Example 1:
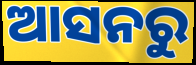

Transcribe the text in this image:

ଆସନରୁ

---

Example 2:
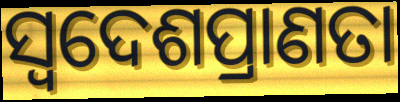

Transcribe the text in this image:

ସ୍ଵଦେଶପ୍ରାଣତା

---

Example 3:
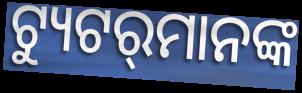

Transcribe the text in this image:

ଟ୍ୟୁଟର୍‍ମାନଙ୍କ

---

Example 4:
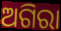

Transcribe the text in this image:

ଅଗିରା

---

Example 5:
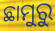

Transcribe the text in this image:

ଛାମୁରୁ